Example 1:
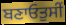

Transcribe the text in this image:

ਬਣਾਓਤੁਸੀਂ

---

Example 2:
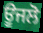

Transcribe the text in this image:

ਊਜਲੋ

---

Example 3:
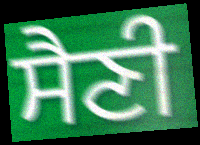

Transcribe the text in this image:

ਸੈਣੀ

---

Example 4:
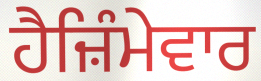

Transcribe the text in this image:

ਹੈਜ਼ਿੰਮੇਵਾਰ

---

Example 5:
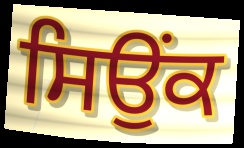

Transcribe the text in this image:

ਸਿਉਂਕ